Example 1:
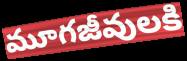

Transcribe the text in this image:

మూగజీవులకి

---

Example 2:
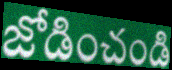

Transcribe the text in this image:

జోడించండి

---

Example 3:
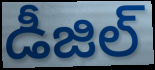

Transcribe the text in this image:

డీజిల్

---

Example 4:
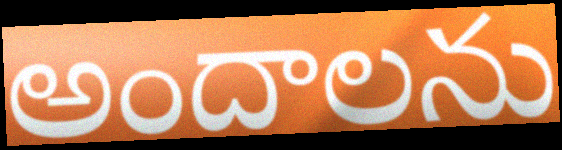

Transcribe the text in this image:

అందాలను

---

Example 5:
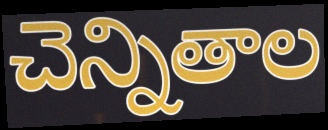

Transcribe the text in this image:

చెన్నితాల